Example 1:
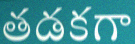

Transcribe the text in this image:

తడకగా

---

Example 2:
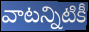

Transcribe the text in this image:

వాటన్నిటికీ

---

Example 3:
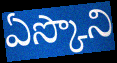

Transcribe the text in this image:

ఏస్కొని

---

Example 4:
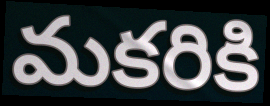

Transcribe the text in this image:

మకరికి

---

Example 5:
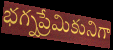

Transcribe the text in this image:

భగ్నప్రేమికునిగా